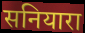
सनियारा